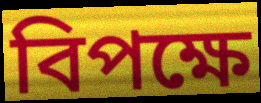
বিপক্ষে